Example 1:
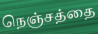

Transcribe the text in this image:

நெஞ்சத்தை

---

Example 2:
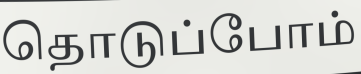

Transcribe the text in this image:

தொடுப்போம்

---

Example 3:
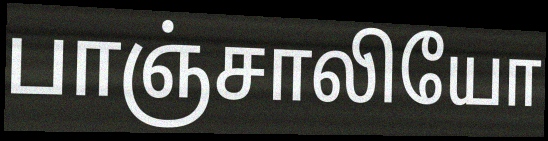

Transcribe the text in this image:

பாஞ்சாலியோ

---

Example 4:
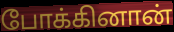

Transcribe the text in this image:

போக்கினான்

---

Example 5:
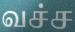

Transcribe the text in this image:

வச்ச